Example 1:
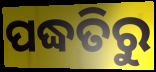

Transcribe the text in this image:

ପଦ୍ଧତିରୁ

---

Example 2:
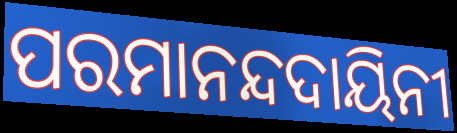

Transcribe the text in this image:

ପରମାନନ୍ଦଦାୟିନୀ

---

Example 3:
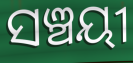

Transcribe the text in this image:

ସଞ୍ଚୟୀ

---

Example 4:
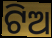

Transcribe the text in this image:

ଟିଅ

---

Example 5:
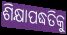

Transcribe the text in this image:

ଶିକ୍ଷାପଦ୍ଧତିକୁ